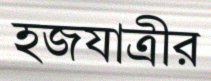
হজযাত্রীর